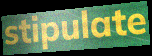
stipulate